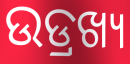
ଉଡ୍ରଖ୍ୟ